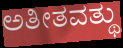
ಅತೀತವತ್ಥು